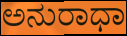
ಅನುರಾಧಾ